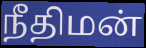
நீதிமன்